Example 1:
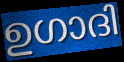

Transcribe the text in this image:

ഉഗാദി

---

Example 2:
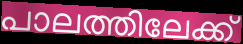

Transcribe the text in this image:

പാലത്തിലേക്ക്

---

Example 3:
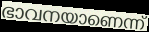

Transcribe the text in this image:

ഭാവനയാണെന്ന്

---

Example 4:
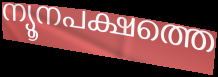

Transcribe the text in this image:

ന്യൂനപക്ഷത്തെ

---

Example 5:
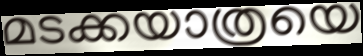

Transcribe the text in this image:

മടക്കയാത്രയെ